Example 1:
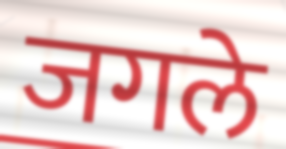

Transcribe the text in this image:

जगले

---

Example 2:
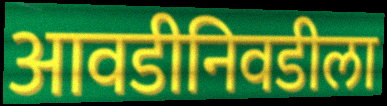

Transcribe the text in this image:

आवडीनिवडीला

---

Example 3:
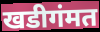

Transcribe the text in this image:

खडीगंमत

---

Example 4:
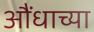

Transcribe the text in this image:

औंधाच्या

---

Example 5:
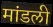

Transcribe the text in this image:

मांडली